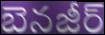
బెనజీర్